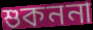
শুকননা